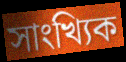
সাংখ্যিক